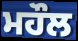
ਮਹੌਲ